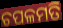
ଚପଳମତି